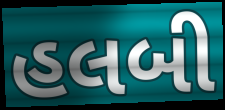
હલબી